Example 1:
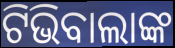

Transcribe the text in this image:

ଟିଭିବାଲାଙ୍କ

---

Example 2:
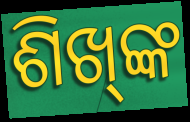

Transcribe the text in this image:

ଶିଖ୍‍ଙ୍କ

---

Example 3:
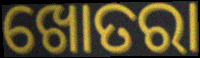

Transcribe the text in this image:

ଖୋତରା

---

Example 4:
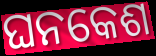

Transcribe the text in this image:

ଘନକେଶ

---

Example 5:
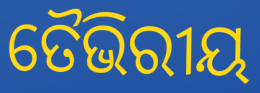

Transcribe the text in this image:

ତୈଭିରୀୟ